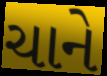
ચાને